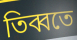
তিব্বতে